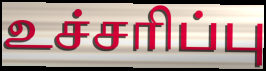
உச்சரிப்பு